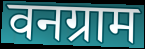
वनग्राम